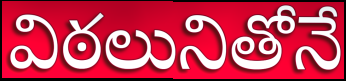
విఠలునితోనే